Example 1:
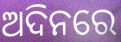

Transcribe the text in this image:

ଅଦିନରେ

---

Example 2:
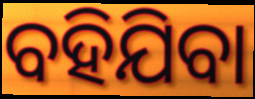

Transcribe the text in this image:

ବହିଯିବା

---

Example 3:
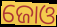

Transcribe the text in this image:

ଜୋଓ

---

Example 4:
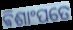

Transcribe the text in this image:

ଵିଶାଂପତେ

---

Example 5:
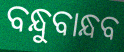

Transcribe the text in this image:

ବନ୍ଧୁବାନ୍ଧବ